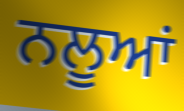
ਨਲੂਆਂ